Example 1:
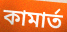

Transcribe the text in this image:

কামার্ত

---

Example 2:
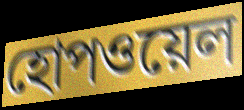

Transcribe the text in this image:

হোপওয়েল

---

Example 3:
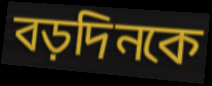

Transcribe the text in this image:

বড়দিনকে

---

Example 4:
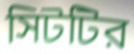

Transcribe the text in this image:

সিটটির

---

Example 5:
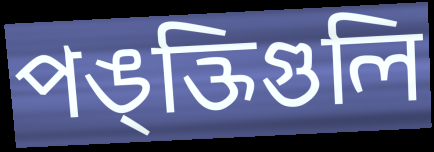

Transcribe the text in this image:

পঙ্‌ক্তিগুলি